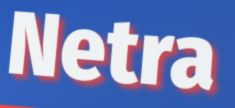
Netra